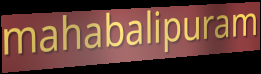
mahabalipuram